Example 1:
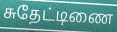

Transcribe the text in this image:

சுதேட்டிணை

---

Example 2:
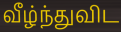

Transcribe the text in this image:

வீழ்ந்துவிட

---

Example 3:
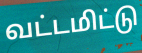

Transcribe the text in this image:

வட்டமிட்டு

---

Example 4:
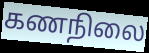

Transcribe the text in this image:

கணநிலை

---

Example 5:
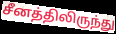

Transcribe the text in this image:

சீனத்திலிருந்து